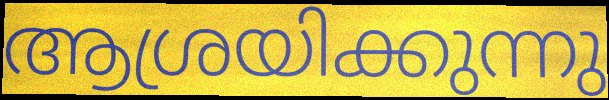
ആശ്രയിക്കുന്നു